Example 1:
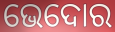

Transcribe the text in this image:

ଭେଦୋର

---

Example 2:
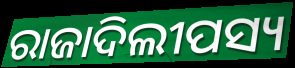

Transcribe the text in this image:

ରାଜାଦିଲୀପସ୍ୟ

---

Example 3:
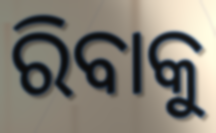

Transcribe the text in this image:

ରିବାକୁ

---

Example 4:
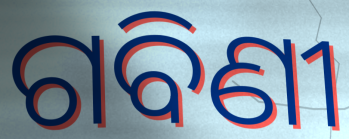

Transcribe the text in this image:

ଗବିଣୀ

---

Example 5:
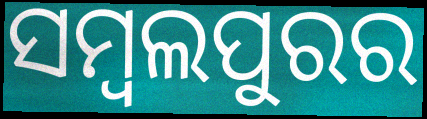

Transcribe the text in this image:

ସମ୍ୱଲପୁରର